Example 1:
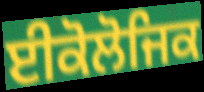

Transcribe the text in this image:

ਈਕੋਲੋਜਿਕ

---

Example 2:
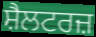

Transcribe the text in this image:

ਸ਼ੈਲਟਰਜ਼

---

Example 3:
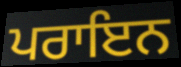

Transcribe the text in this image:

ਪਰਾਇਨ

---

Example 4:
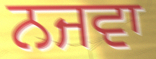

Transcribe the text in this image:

ਨਜਵਾ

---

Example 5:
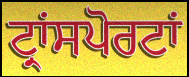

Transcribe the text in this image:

ਟ੍ਰਾਂਸਪੋਰਟਾਂ